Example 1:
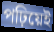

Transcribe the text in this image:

পঢ়িয়েই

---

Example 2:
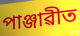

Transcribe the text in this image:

পাঞ্জাৱীত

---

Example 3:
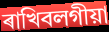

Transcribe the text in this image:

ৰাখিবলগীয়া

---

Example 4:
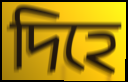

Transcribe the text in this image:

দিহে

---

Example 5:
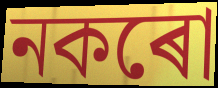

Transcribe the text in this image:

নকৰো